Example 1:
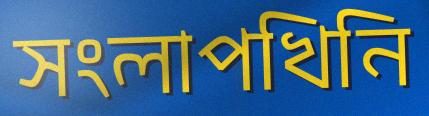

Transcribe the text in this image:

সংলাপখিনি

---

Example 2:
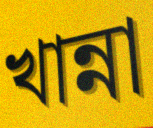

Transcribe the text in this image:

খান্না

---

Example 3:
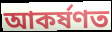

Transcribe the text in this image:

আকৰ্ষণত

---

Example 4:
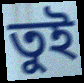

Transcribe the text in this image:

তুই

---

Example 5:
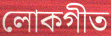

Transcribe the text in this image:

লোকগীত